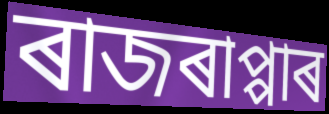
ৰাজৰাপ্পাৰ